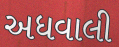
અધવાલી